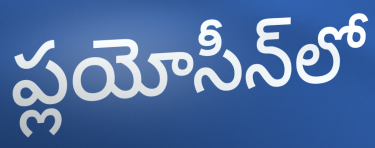
ప్లయోసీన్‌లో